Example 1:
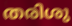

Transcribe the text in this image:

തരിശു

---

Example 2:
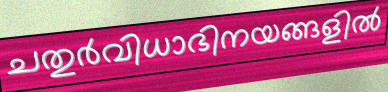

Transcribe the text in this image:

ചതുർവിധാഭിനയങ്ങളിൽ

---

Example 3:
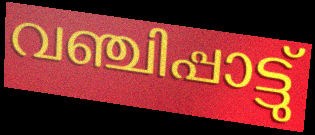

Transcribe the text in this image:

വഞ്ചിപ്പാട്ടു്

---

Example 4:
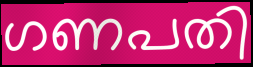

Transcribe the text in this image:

ഗണപതി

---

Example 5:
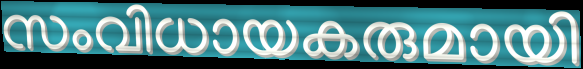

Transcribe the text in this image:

സംവിധായകരുമായി